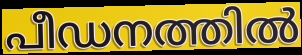
പീഡനത്തിൽ